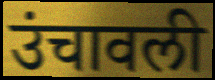
उंचावली